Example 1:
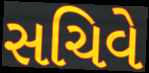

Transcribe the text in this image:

સચિવે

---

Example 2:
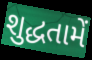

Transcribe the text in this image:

શુદ્ધતામેં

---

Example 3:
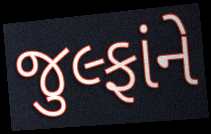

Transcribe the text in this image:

જુલ્ફાંને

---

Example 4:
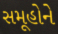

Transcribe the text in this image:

સમૂહોને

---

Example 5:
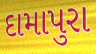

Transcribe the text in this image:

દામાપુરા